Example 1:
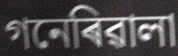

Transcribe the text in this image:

গনেৰিৱালা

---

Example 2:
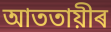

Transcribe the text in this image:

আততায়ীৰ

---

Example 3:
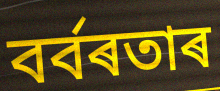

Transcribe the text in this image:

বৰ্বৰতাৰ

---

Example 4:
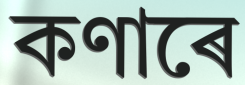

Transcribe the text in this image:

কণাৰে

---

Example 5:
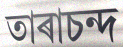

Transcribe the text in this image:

তাৰাচন্দ